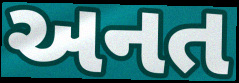
અનત